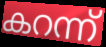
കറന്ന്